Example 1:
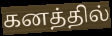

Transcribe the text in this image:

கனத்தில்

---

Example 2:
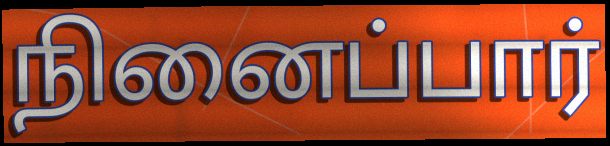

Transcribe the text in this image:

நினைப்பார்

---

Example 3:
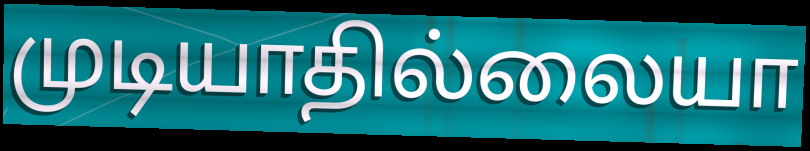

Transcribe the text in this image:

முடியாதில்லையா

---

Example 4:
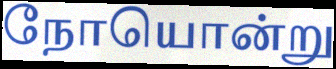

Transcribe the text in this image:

நோயொன்று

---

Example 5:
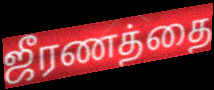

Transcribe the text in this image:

ஜீரணத்தை